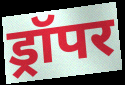
ड्रॉपर